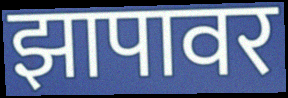
झापावर